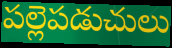
పల్లెపడుచులు